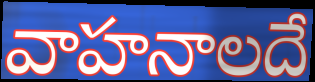
వాహనాలదే